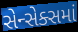
સેન્સેક્સમાં